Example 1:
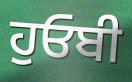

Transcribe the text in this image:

ਹੁਓਬੀ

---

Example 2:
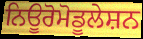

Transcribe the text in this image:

ਨਿਊਰੋਮੋਡੂਲੇਸ਼ਨ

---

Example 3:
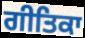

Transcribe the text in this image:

ਗੀਤਿਕਾ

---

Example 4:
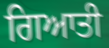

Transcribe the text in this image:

ਗਿਆਤੀ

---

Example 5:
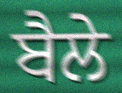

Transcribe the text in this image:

ਬੈਲੇ